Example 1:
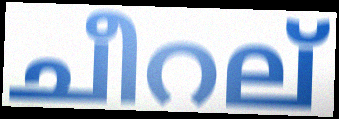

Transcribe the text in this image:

ചീറല്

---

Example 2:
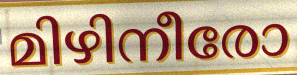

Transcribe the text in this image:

മിഴിനീരോ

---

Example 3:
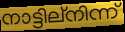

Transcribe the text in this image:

നാട്ടില്നിന്ന്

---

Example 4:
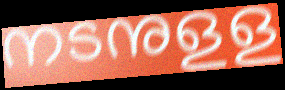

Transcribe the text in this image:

നടനുളള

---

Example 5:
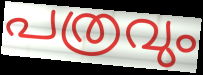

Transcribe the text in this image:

പത്രവും